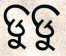
ଡୁଡୁ